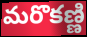
మరొకణ్ణి